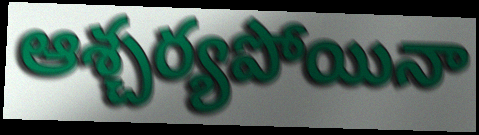
ఆశ్చర్యపోయినా